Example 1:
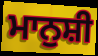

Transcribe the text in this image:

ਮਾਨੁਸ਼ੀ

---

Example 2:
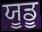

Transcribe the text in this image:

ਯੂਡੂ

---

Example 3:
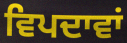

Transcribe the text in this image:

ਵਿਪਦਾਵਾਂ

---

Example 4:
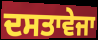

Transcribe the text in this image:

ਦਸਤਾਵੇਜਾ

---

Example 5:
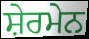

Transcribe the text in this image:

ਸ਼ੇਰਮੇਨ